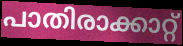
പാതിരാക്കാറ്റ്